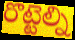
రొట్టెల్ని